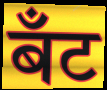
बँट